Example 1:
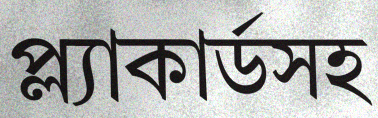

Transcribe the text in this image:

প্ল্যাকার্ডসহ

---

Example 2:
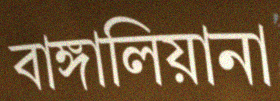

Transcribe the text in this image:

বাঙ্গালিয়ানা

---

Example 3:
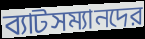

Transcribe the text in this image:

ব্যাটসম্যানদের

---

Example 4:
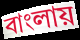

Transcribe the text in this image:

বাংলায়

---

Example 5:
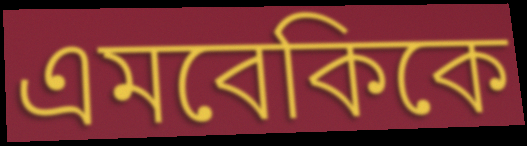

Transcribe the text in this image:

এমবেকিকে